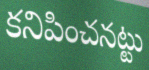
కనిపించనట్టు